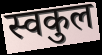
स्वकुल